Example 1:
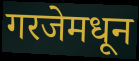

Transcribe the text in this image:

गरजेमधून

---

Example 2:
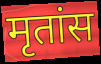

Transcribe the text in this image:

मृतांस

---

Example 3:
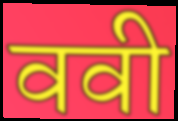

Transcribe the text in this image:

ववी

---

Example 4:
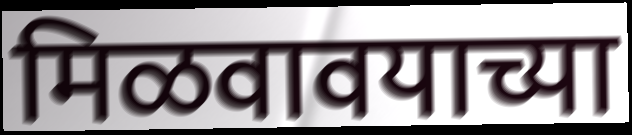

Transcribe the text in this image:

मिळवावयाच्या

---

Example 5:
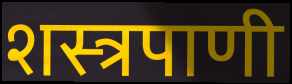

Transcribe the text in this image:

शस्त्रपाणी